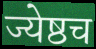
ज्येष्ठच